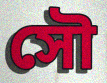
সৌ